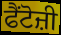
ਫੈਂਟੋਜ਼ੀ